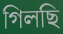
গিলছি